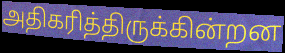
அதிகரித்திருக்கின்றன